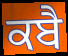
ਕਬੈ